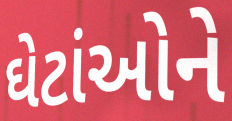
ઘેટાંઓને